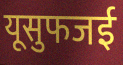
यूसुफजई